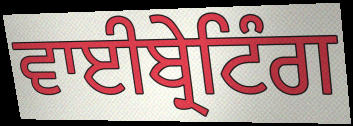
ਵਾਈਬ੍ਰੇਟਿੰਗ